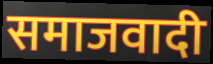
समाजवादी